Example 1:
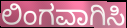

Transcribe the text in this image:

ಲಿಂಗವಾಗಿಸಿ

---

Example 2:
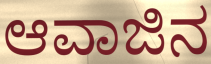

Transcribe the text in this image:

ಆವಾಜಿನ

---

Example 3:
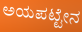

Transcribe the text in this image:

ಅಯಪಟ್ಟೇನ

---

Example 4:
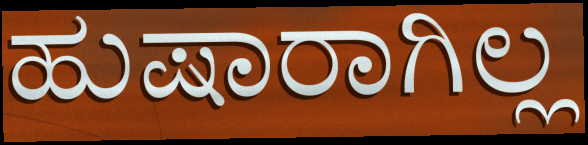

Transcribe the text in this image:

ಹುಷಾರಾಗಿಲ್ಲ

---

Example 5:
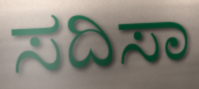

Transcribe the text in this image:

ಸದಿಸಾ